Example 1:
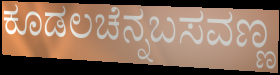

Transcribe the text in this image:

ಕೂಡಲಚೆನ್ನಬಸವಣ್ಣ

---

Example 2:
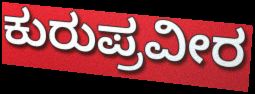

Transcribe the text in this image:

ಕುರುಪ್ರವೀರ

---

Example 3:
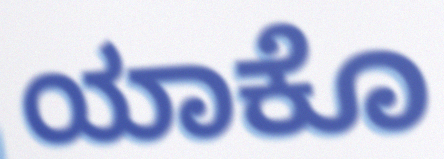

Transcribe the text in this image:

ಯಾಕೊ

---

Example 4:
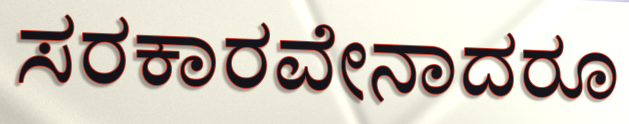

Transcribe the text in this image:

ಸರಕಾರವೇನಾದರೂ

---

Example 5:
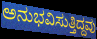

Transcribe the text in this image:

ಅನುಭವಿಸುತ್ತಿದ್ದವು